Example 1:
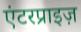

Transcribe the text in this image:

एंटरप्राइज़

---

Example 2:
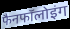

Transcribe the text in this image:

फैनफॉलोइंग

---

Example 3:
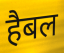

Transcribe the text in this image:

हैबल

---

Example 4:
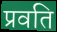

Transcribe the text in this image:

प्रवति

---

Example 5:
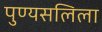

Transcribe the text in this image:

पुण्यसलिला